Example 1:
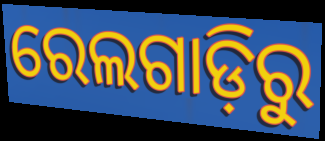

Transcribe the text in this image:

ରେଲଗାଡ଼ିରୁ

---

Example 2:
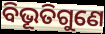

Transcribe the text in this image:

ବିଭୂତିଗୁଣେ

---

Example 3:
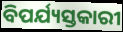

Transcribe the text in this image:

ବିପର୍ଯ୍ୟସ୍ତକାରୀ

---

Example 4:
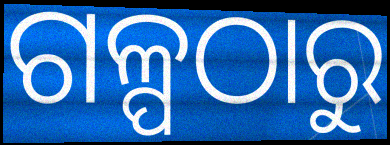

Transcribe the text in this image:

ଗଳ୍ପଠାରୁ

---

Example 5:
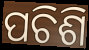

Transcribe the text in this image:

ପଚିଶି